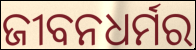
ଜୀବନଧର୍ମର